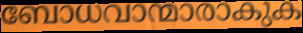
ബോധവാന്മാരാകുക